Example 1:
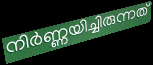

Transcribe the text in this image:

നിർണ്ണയിച്ചിരുന്നത്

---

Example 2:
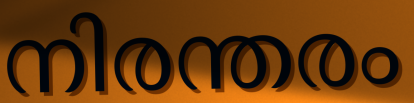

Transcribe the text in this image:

നിരന്തരം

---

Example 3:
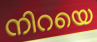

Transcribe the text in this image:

നിറയെ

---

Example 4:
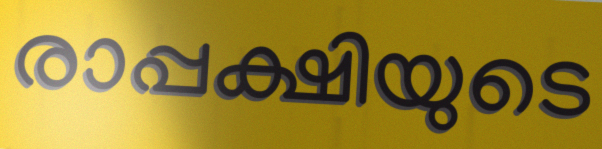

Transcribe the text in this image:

രാപ്പക്ഷിയുടെ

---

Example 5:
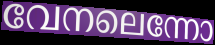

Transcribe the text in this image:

വേനലെന്നോ